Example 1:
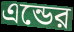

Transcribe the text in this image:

এন্ডের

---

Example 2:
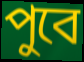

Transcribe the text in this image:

পুবে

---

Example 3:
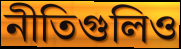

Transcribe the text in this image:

নীতিগুলিও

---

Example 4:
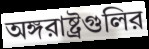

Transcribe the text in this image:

অঙ্গরাষ্ট্রগুলির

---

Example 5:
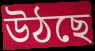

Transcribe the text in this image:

উঠছে